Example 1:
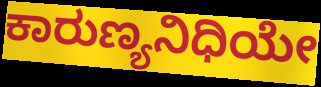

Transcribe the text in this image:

ಕಾರುಣ್ಯನಿಧಿಯೇ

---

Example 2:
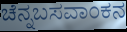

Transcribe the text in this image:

ಚೆನ್ನಬಸವಾಂಕನ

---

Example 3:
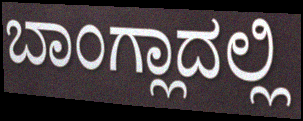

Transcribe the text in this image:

ಬಾಂಗ್ಲಾದಲ್ಲಿ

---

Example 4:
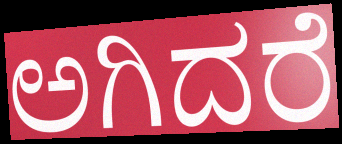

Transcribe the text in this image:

ಅಗಿದರೆ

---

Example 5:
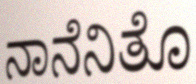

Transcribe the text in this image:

ನಾನೆನಿತೊ